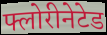
फ्लोरीनेटेड